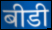
बीडी